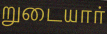
றுடையார்